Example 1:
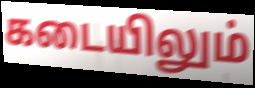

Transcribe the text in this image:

கடையிலும்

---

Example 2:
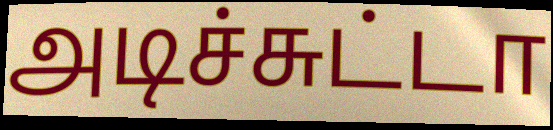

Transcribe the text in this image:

அடிச்சுட்டா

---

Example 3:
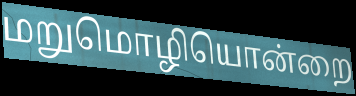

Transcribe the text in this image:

மறுமொழியொன்றை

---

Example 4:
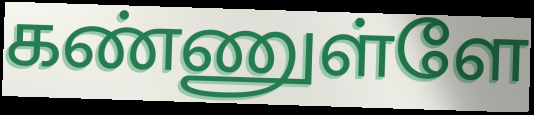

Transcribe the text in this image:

கண்ணுள்ளே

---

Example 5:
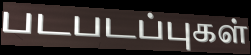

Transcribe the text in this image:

படபடப்புகள்